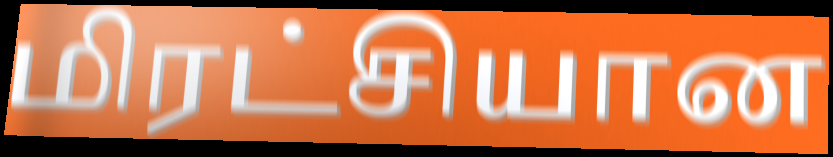
மிரட்சியான